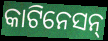
କାଟିନେସନ୍